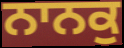
ਨਾਨਕੁ